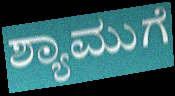
ಶ್ಯಾಮುಗೆ